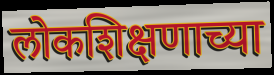
लोकशिक्षणाच्या